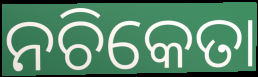
ନଚିକେତା